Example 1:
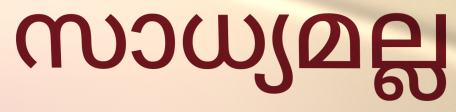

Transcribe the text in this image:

സാധ്യമല്ല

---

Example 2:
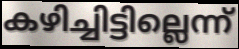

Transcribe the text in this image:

കഴിച്ചിട്ടില്ലെന്ന്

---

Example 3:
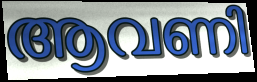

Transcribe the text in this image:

ആവണി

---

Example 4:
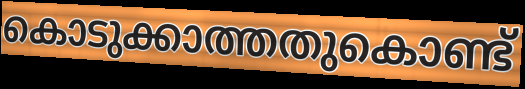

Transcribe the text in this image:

കൊടുക്കാത്തതുകൊണ്ട്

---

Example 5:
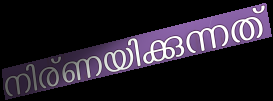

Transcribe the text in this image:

നിര്ണയിക്കുന്നത്